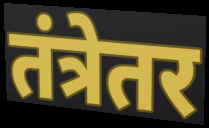
तंत्रेतर